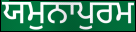
ਯਮੁਨਾਪੁਰਮ